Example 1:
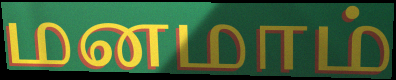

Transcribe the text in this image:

மனமாம்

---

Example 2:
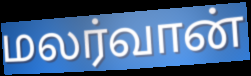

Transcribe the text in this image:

மலர்வான்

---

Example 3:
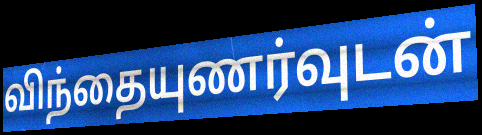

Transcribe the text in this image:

விந்தையுணர்வுடன்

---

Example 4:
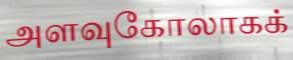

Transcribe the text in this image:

அளவுகோலாகக்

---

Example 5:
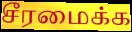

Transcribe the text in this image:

சீரமைக்க